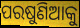
ପରଷୁଣିଆକୁ